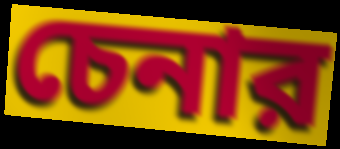
চেনার